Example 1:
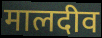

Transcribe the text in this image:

मालदीव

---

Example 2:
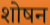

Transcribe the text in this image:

शोषन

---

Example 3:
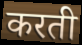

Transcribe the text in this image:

करती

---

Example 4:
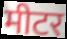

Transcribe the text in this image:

मीटर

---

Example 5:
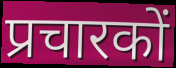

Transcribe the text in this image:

प्रचारकों